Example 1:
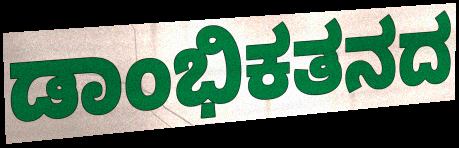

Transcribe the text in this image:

ಡಾಂಭಿಕತನದ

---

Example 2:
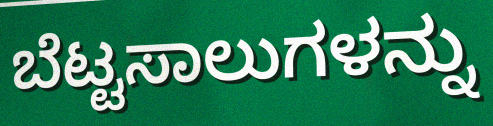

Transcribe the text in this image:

ಬೆಟ್ಟಸಾಲುಗಳನ್ನು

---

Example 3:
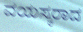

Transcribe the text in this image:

ವಯಸ್ಕರಾದ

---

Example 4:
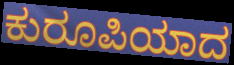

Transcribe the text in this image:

ಕುರೂಪಿಯಾದ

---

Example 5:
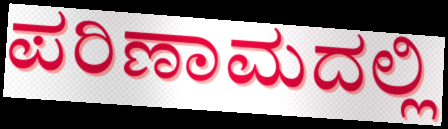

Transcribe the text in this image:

ಪರಿಣಾಮದಲ್ಲಿ